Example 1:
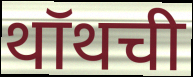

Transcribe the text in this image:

थॉथची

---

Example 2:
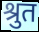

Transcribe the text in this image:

श्रुत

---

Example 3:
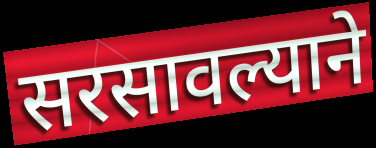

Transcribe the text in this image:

सरसावल्याने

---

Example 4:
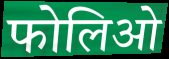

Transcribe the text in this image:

फोलिओ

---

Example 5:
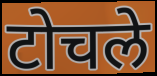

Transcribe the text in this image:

टोचले